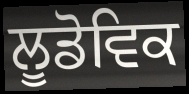
ਲੂਡੋਵਿਕ